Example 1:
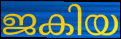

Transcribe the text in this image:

ജകിയ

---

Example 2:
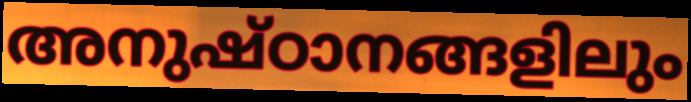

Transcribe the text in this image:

അനുഷ്ഠാനങ്ങളിലും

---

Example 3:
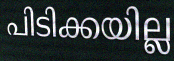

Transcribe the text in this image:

പിടിക്കയില്ല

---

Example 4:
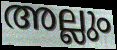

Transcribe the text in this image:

അല്ലും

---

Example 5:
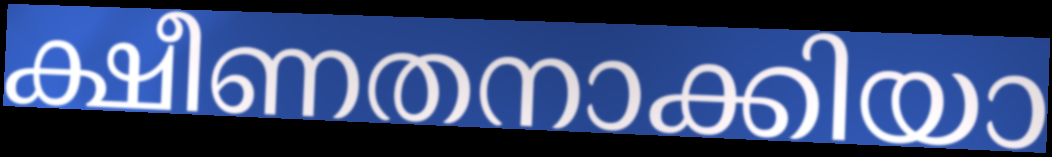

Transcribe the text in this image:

ക്ഷീണതനാക്കിയാ